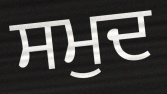
ਸਮੁਦ